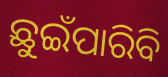
ଛୁଇଁପାରିବି